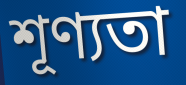
শূণ্যতা